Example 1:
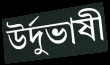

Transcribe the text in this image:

উর্দুভাষী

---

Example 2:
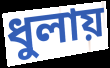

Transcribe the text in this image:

ধুলায়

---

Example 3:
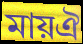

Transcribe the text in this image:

মায়ঐ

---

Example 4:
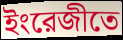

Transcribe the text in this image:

ইংরেজীতে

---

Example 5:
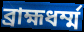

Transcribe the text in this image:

ব্রাহ্মধর্ম্ম